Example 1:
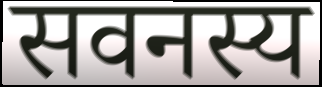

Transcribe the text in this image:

सवनस्य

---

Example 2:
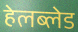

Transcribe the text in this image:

हेलब्लेड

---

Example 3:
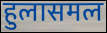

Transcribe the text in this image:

हुलासमल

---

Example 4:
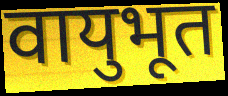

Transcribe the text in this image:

वायुभूत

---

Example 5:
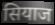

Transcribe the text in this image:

सियाज